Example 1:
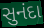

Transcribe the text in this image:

સુનંદા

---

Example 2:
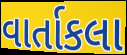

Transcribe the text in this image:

વાર્તાકલા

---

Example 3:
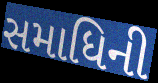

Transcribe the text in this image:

સમાધિની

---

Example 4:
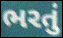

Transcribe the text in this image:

ભરતું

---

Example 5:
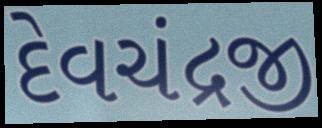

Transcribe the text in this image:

દેવચંદ્રજી